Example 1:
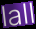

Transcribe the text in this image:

lall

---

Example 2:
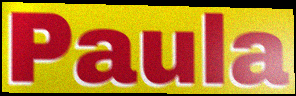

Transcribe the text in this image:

Paula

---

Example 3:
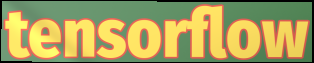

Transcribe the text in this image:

tensorflow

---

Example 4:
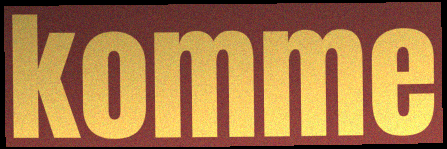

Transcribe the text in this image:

komme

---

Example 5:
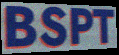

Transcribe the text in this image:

BSPT